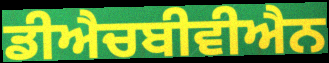
ਡੀਐਚਬੀਵੀਐਨ